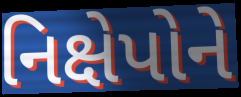
નિક્ષેપોને